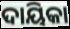
ଦାୟିକା